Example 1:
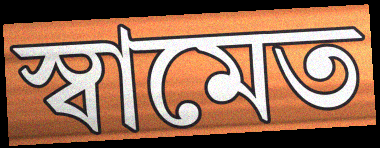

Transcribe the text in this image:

স্বামেত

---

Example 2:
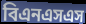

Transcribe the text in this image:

বিএনএসএস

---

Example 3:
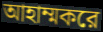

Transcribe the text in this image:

আহাম্মকরে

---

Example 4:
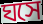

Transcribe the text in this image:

ঘসে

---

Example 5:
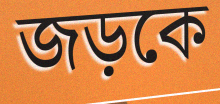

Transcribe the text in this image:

জড়কে